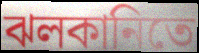
ঝলকানিতে